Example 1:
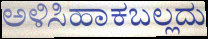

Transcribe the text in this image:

ಅಳಿಸಿಹಾಕಬಲ್ಲದು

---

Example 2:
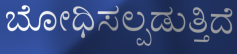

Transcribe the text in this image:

ಬೋಧಿಸಲ್ಪಡುತ್ತಿದೆ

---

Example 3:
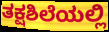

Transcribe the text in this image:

ತಕ್ಷಶಿಲೆಯಲ್ಲಿ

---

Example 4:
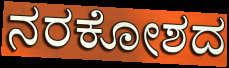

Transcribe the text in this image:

ನರಕೋಶದ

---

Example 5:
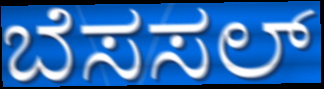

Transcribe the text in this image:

ಬೆಸಸಲ್